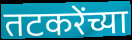
तटकरेंच्या